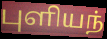
புளியந்